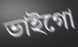
ভাইগো